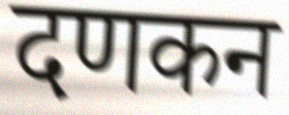
दणकन